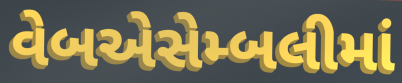
વેબએસેમ્બલીમાં